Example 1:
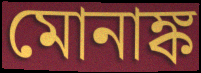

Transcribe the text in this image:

মোনাঙ্ক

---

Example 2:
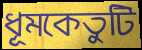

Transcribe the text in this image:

ধূমকেতুটি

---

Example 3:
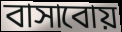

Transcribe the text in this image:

বাসাবোয়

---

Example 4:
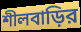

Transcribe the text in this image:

শীলবাড়ির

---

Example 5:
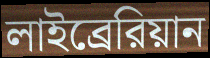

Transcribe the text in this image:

লাইব্রেরিয়ান